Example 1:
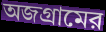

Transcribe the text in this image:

অজগ্রামের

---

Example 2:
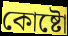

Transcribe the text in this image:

কোষ্টো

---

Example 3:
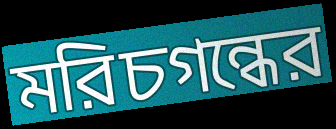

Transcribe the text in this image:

মরিচগন্ধের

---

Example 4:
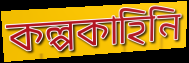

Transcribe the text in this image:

কল্পকাহিনি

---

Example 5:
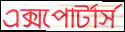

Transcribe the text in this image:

এক্সপোর্টার্স